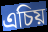
এচিয়